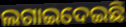
ଲଗାଇଦେଇଛି